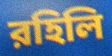
রহিলি